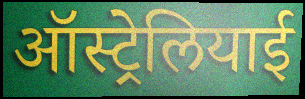
ऑस्ट्रेलियाई